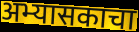
अभ्यासकाचा